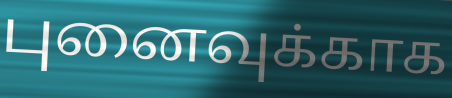
புனைவுக்காக